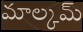
మాల్కమ్